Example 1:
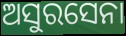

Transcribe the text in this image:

ଅସୁରସେନା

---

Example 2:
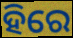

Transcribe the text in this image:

ହିରେ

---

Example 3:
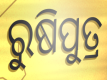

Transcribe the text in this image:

ରୁଷିପୁତ୍ର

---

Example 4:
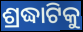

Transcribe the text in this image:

ଶ୍ରଦ୍ଧାଟିକୁ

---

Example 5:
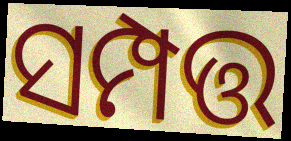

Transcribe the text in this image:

ସମ୍ପତ୍ତ